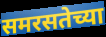
समरसतेच्या